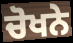
ਚੋਖਨੇ